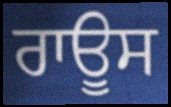
ਰਾਊਸ